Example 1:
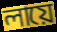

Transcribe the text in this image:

লায়ে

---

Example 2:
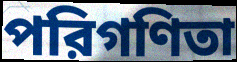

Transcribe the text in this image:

পরিগণিতা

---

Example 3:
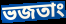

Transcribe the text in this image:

ভজতাং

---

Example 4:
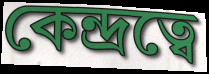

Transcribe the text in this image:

কেন্দ্রত্বে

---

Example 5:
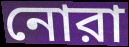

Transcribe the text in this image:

নোরা